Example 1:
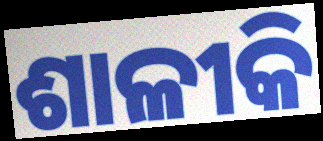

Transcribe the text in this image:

ଶାଳୀକି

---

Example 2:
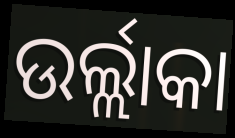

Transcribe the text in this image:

ଉର୍ଲ୍ଲାକା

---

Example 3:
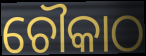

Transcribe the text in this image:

ଚୌକାଠ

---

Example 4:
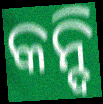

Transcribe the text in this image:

କନ୍ଦି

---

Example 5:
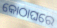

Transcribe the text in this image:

କୋଠାଘରେ